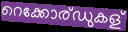
റെക്കോര്ഡുകള്